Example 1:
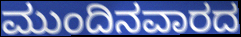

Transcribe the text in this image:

ಮುಂದಿನವಾರದ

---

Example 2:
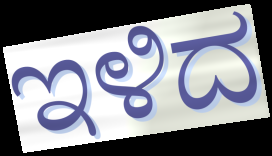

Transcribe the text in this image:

ಇಳಿದ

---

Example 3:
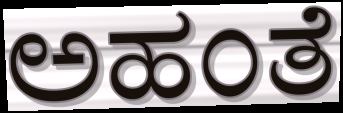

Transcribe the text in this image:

ಅಹಂತೆ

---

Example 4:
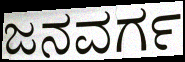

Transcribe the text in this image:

ಜನವರ್ಗ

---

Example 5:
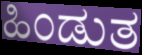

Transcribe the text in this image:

ಹಿಂಡುತ